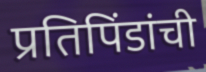
प्रतिपिंडांची